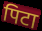
पिटा